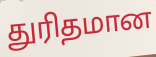
துரிதமான